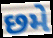
છમે